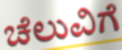
ಚೆಲುವಿಗೆ